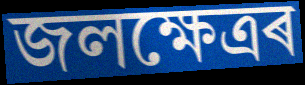
জলক্ষেত্ৰৰ